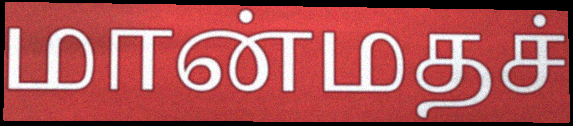
மான்மதச்